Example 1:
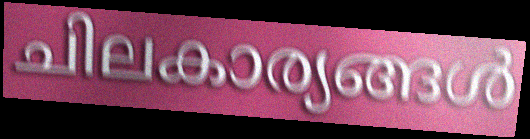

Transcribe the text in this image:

ചിലകാര്യങ്ങൾ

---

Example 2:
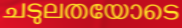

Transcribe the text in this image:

ചടുലതയോടെ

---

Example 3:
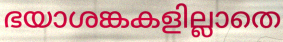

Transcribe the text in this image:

ഭയാശങ്കകളില്ലാതെ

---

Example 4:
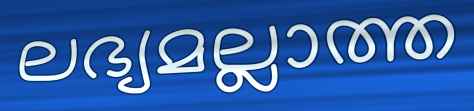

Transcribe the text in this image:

ലഭ്യമല്ലാത്ത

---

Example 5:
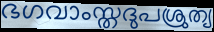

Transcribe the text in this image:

ഭഗവാംസ്തദുപശ്രുത്യ